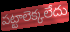
పట్టాలెక్కలేదు